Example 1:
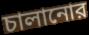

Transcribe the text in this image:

চালানোর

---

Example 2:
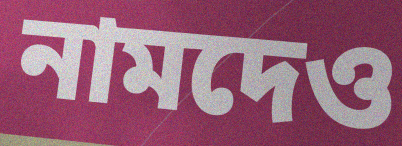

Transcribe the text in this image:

নামদেও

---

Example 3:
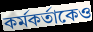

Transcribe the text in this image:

কর্মকর্তাকেও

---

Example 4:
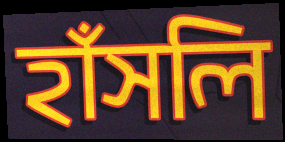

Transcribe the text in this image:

হাঁসলি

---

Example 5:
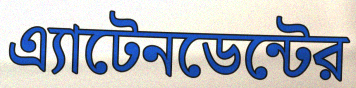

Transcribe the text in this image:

এ্যাটেনডেন্টের